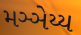
મઞ્ઞેય્ય